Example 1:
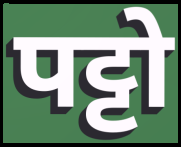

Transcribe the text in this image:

पट्टो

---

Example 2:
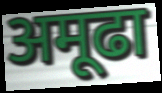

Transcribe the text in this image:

अमूढा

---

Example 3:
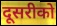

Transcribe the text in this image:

दूसरीको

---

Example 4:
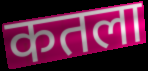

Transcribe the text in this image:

कतला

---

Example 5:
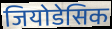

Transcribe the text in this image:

जियोडेसिक